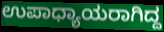
ಉಪಾಧ್ಯಾಯರಾಗಿದ್ದ